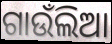
ଗାଉଁଲିଆ